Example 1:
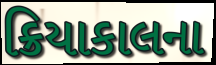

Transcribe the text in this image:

ક્રિયાકાલના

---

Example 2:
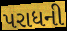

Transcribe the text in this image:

પરાધની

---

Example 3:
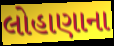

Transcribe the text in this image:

લોહાણાના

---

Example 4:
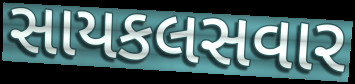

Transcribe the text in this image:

સાયકલસવાર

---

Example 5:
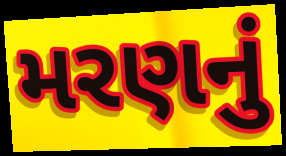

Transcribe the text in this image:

મરણનું